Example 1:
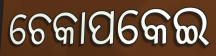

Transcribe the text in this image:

ଚେକାପକେଇ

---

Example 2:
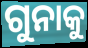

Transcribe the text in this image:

ଗୁନାକୁ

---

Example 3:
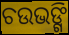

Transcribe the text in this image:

ଚଉଭଙ୍ଗି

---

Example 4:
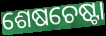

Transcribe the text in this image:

ଶେଷଚେଷ୍ଟା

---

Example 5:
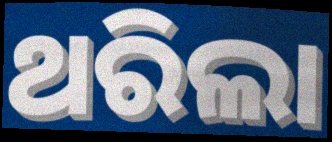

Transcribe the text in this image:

ଥରିଲା